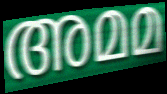
അമമ